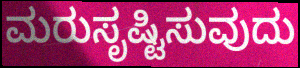
ಮರುಸೃಷ್ಟಿಸುವುದು